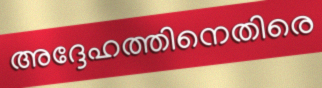
അദ്ദേഹത്തിനെതിരെ